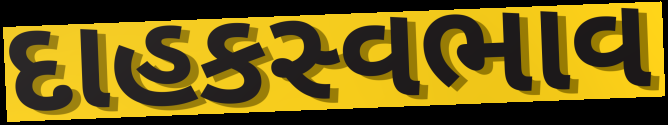
દાહકસ્વભાવ